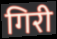
गिरी